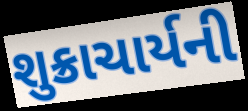
શુક્રાચાર્યની